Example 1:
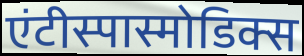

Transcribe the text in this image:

एंटीस्पास्मोडिक्स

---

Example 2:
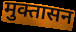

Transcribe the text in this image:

मुक्तासन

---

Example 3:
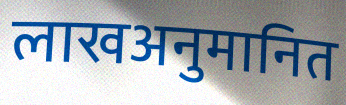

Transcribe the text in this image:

लाखअनुमानित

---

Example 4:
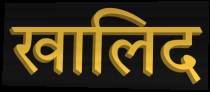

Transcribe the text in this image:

खालिद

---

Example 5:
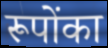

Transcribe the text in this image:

रूपोंका